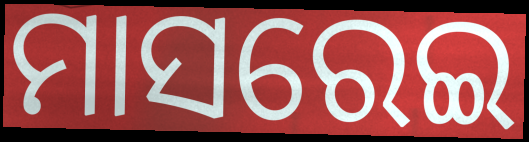
ମାସରେଇ